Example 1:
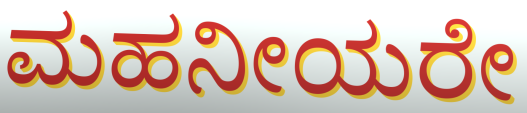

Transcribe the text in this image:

ಮಹನೀಯರೇ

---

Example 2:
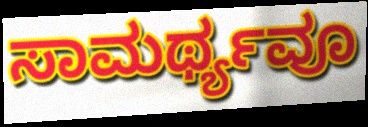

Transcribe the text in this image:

ಸಾಮರ್ಥ್ಯವೂ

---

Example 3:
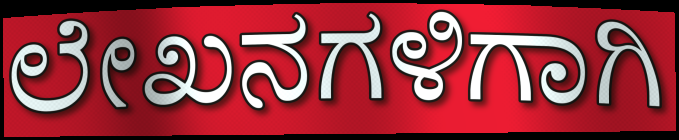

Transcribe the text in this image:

ಲೇಖನಗಳಿಗಾಗಿ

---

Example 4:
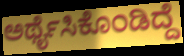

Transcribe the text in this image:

ಅರ್ಥೈಸಿಕೊಂಡಿದ್ದೆ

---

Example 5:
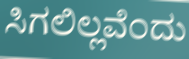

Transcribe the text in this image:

ಸಿಗಲಿಲ್ಲವೆಂದು